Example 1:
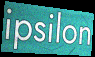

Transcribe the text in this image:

ipsilon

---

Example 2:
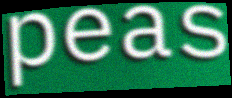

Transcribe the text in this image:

peas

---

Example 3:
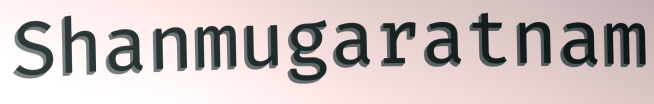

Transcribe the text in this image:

Shanmugaratnam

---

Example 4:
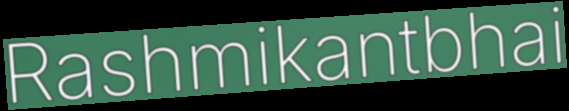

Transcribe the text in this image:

Rashmikantbhai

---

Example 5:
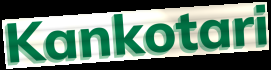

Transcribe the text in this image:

Kankotari